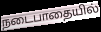
நடைபாதையில்